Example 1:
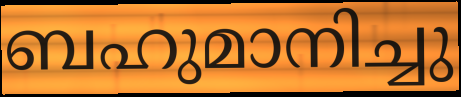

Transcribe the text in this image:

ബഹുമാനിച്ചു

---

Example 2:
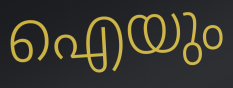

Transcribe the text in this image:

ഐയും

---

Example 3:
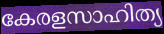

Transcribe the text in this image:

കേരളസാഹിത്യ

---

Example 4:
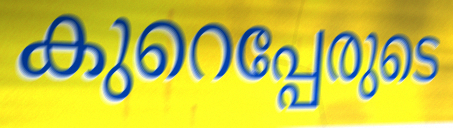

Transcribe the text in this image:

കുറെപ്പേരുടെ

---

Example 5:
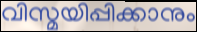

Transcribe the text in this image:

വിസ്മയിപ്പിക്കാനും